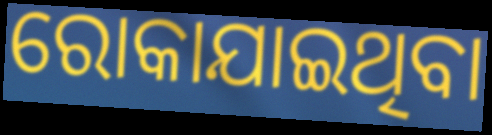
ରୋକାଯାଇଥିବା